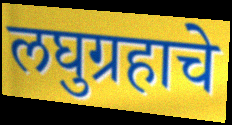
लघुग्रहाचे